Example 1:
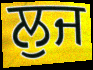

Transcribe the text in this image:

ਲੁਜ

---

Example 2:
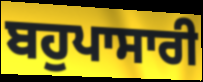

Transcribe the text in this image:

ਬਹੁਪਾਸਾਰੀ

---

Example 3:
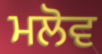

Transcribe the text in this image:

ਮਲੋਵ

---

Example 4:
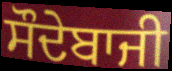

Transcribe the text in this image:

ਸੌਦੇਬਾਜੀ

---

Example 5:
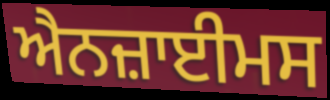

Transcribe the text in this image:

ਐਨਜ਼ਾਈਮਸ